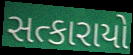
સત્કારાયો